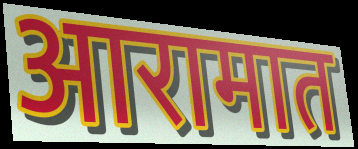
आरामात